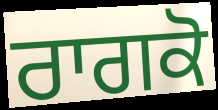
ਰਾਗਕੋ